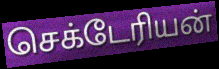
செக்டேரியன்